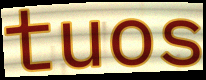
tuos